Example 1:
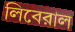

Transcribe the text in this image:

লিবেরাল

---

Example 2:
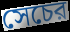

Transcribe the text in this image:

সেচের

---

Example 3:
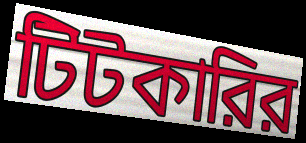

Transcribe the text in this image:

টিটকারির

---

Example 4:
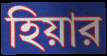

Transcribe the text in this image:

হিয়ার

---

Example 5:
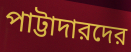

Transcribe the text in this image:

পাট্টাদারদের